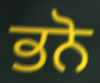
ਭਨੋ